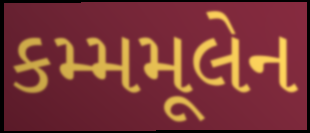
કમ્મમૂલેન